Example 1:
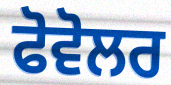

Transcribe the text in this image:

ਫੋਵੋਲਰ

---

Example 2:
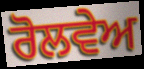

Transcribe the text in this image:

ਰੋਲਵੇਅ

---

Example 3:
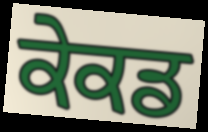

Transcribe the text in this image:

ਕੇਕਡ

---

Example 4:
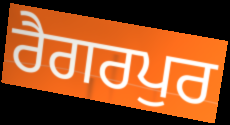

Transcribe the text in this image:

ਰੈਗਰਪੁਰ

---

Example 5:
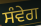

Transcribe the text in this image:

ਸੰਵੇਗ